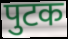
पुटक